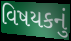
વિષયકનું